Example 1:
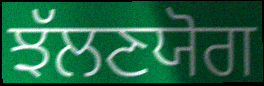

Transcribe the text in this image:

ਝੱਲਣਯੋਗ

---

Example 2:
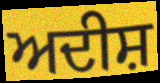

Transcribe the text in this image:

ਅਦੀਸ਼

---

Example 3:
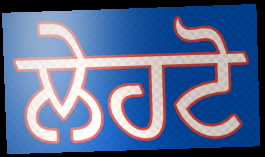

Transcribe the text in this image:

ਲੇਹਟੋ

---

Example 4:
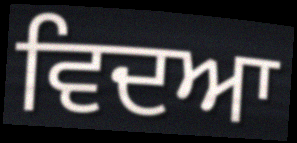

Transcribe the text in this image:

ਵਿਦਆ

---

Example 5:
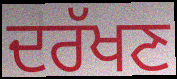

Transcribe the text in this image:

ਦਰੱਖਣ